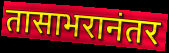
तासाभरानंतर